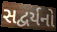
સદ્વર્યનો